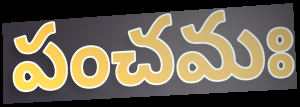
పంచమః